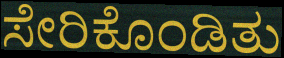
ಸೇರಿಕೊಂಡಿತು